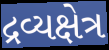
દ્રવ્યક્ષેત્ર